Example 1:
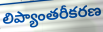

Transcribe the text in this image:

లిప్యాంతరీకరణ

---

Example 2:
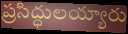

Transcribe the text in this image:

ప్రసిద్ధులయ్యారు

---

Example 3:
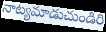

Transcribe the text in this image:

నాట్యమాడుచుండిరి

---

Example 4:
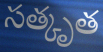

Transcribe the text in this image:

సత్కృత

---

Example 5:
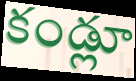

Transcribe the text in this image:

కండ్లూ